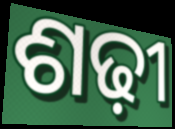
ଶଢ଼ୀ